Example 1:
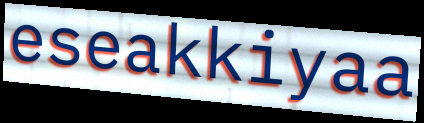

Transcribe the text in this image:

eseakkiyaa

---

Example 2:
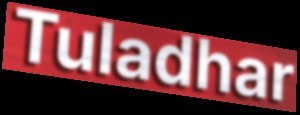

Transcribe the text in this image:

Tuladhar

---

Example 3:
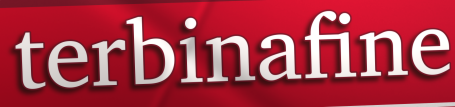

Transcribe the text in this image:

terbinafine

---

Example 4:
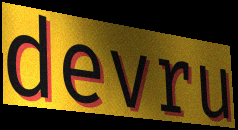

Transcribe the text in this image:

devru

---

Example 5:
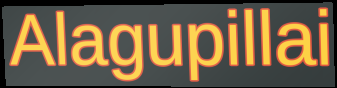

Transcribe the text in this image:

Alagupillai